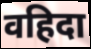
वहिदा